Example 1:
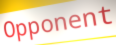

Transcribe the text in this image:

Opponent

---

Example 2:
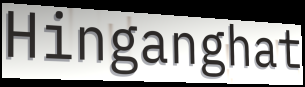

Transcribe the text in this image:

Hinganghat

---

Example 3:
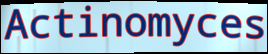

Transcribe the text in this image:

Actinomyces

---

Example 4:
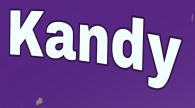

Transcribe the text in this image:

Kandy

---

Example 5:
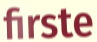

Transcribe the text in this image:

firste